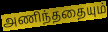
அணிந்ததையும்